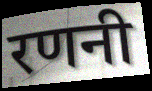
रणनी